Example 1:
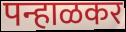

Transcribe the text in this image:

पन्हाळकर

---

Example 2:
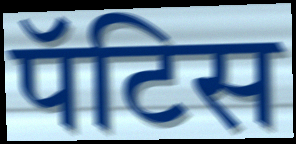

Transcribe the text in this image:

पॅटिस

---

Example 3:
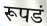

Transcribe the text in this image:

रूपडं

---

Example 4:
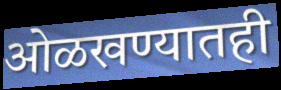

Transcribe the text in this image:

ओळखण्यातही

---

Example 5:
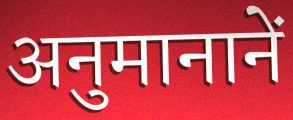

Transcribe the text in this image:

अनुमानानें